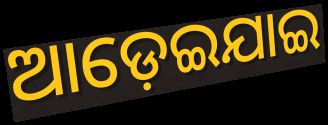
ଆଡ଼େଇଯାଇ